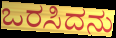
ಒರಸಿದನು